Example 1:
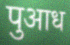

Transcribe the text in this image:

पुआध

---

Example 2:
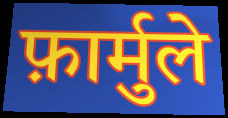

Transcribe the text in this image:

फ़ार्मुले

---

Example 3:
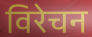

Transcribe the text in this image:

विरेचन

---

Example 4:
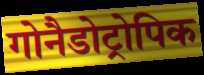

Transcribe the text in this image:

गोनैडोट्रोपिक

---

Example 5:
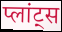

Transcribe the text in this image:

प्लांट्स